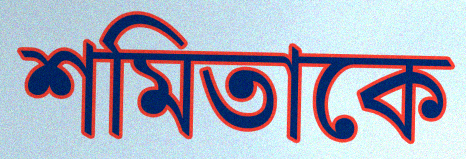
শমিতাকে